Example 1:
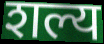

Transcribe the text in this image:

शल्य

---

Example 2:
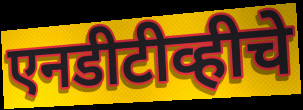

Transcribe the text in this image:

एनडीटीव्हीचे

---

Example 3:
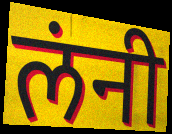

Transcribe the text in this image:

लंनी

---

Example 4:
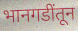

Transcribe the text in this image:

भानगडींतून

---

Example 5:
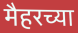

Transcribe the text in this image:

मैहरच्या